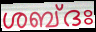
ശബ്ദഃ